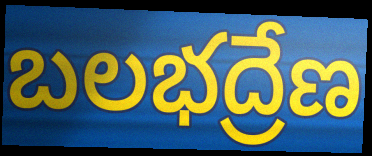
బలభద్రేణ